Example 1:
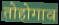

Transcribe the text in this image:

तोहोगाव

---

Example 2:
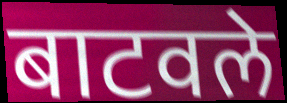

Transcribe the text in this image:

बाटवले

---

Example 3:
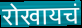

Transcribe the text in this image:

रोखायचं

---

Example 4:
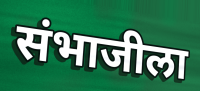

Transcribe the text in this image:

संभाजीला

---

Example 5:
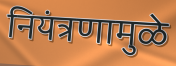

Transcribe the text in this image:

नियंत्रणामुळे